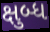
ક્ષુબ્ધ